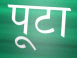
पूटा